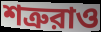
শত্রুরাও